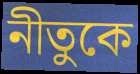
নীতুকে